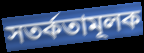
সতর্কতামূলক